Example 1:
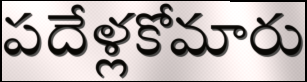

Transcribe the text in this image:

పదేళ్లకోమారు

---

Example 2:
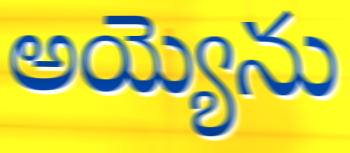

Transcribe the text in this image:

అయ్యెను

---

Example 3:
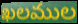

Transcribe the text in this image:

ఖలముల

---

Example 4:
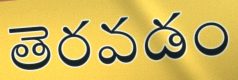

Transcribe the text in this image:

తెరవడం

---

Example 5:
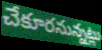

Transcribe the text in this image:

చేకూరనున్నట్లు